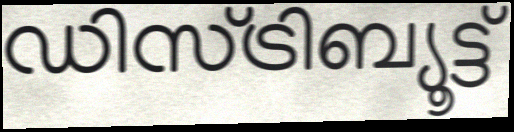
ഡിസ്ട്രിബ്യൂട്ട്